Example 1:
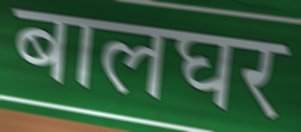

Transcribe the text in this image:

बालघर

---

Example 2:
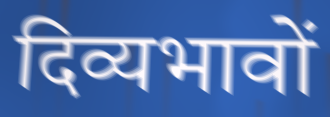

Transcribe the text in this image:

दिव्यभावों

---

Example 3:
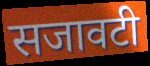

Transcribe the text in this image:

सजावटी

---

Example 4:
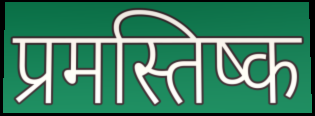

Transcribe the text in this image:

प्रमस्तिष्क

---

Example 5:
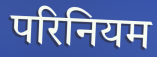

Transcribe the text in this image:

परिनियम